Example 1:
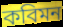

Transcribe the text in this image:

কবিমন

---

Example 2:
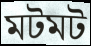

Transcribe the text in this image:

মটমট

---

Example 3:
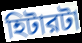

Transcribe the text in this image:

হিটারটা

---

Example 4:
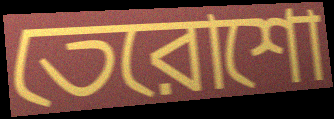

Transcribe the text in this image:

তেরোশো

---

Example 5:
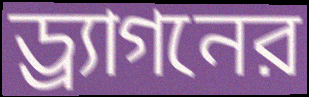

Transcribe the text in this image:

ড্র্যাগনের